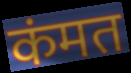
कंमत